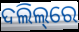
ଦଲିଲ୍‌ରେ